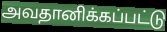
அவதானிக்கப்பட்டு